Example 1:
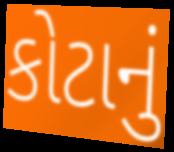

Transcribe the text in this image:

કોટાનું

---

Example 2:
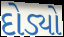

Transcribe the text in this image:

દોડ્યો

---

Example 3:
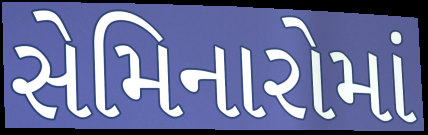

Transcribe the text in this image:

સેમિનારોમાં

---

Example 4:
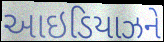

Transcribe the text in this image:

આઇડિયાઝને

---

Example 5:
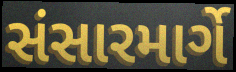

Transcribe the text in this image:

સંસારમાર્ગે